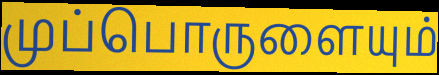
முப்பொருளையும்